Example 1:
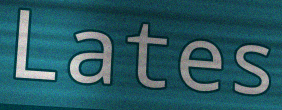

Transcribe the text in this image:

Lates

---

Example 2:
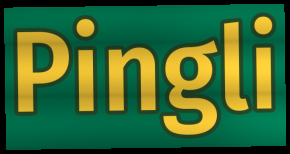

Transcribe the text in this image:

Pingli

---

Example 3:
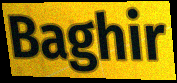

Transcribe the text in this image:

Baghir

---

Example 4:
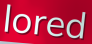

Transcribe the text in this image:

lored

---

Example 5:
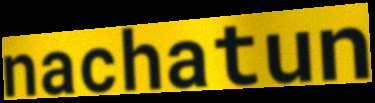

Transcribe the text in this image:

nachatun